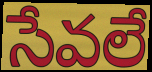
సేవలే